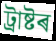
ট্ৰাষ্টৰ